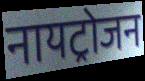
नायट्रोजन